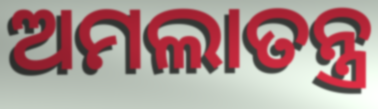
ଅମଲାତନ୍ତ୍ର